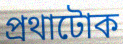
প্ৰথাটোক